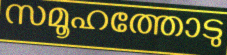
സമൂഹത്തോടു